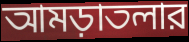
আমড়াতলার